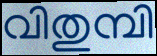
വിതുമ്പി